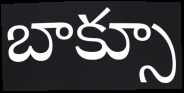
బాక్సూ